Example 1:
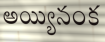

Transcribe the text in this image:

అయ్యినంక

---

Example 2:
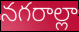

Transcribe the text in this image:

నగరాల్లా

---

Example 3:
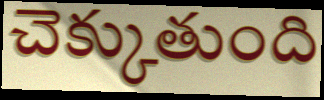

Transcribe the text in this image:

చెక్కుతుంది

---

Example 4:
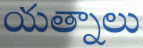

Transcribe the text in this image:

యత్నాలు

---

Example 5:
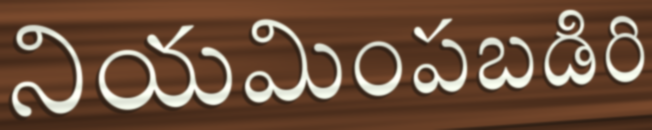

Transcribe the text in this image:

నియమింపబడిరి